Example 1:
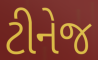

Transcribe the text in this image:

ટીનેજ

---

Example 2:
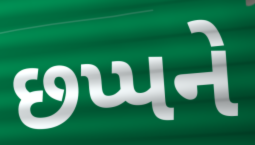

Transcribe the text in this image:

છપ્પને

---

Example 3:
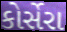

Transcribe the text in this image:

કોર્સેરા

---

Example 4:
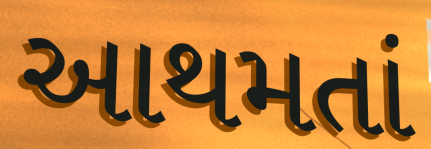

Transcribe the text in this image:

આથમતાં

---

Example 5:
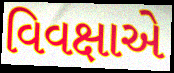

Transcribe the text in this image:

વિવક્ષાએ